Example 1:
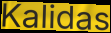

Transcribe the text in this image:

Kalidas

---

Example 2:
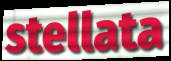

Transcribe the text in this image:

stellata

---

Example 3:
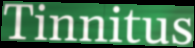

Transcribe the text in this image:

Tinnitus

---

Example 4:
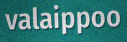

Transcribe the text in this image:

valaippoo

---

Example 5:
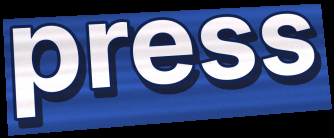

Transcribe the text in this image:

press